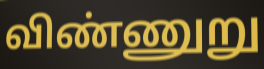
விண்ணுறு